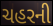
ચહરની